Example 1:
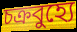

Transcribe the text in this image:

চক্রবুহ্যে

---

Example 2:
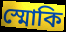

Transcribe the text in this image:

স্মোকি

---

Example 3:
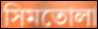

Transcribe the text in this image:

সিমতোলা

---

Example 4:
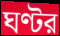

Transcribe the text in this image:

ঘণ্টর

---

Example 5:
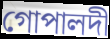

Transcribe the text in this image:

গোপালদী